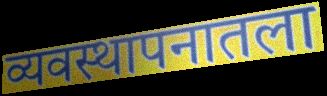
व्यवस्थापनातला